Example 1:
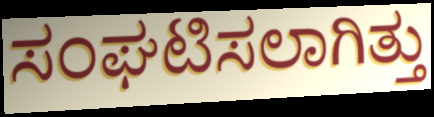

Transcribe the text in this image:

ಸಂಘಟಿಸಲಾಗಿತ್ತು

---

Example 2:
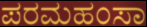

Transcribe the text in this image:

ಪರಮಹಂಸಾ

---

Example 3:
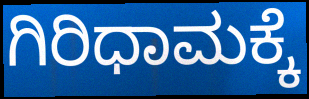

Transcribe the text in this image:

ಗಿರಿಧಾಮಕ್ಕೆ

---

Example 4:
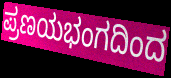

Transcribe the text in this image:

ಪ್ರಣಯಭಂಗದಿಂದ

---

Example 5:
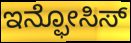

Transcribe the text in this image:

ಇನ್ಫೋಸಿಸ್